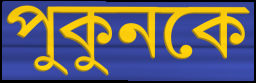
পুকুনকে